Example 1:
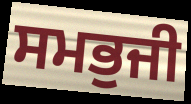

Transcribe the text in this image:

ਸਮਭੁਜੀ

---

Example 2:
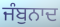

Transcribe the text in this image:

ਜੰਬੁਨਾਦ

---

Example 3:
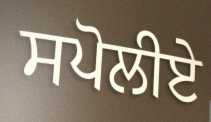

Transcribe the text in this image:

ਸਪੋਲੀਏ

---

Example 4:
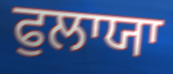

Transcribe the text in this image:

ਫੁਲਾਯਾ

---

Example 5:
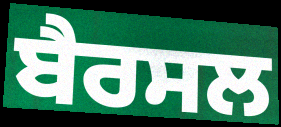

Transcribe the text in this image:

ਬੈਰਸਲ